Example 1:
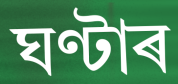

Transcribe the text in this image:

ঘণ্টাৰ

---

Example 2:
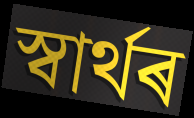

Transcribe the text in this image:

স্বাৰ্থৰ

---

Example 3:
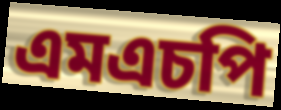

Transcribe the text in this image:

এমএচপি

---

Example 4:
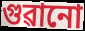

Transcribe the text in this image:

গুৱানো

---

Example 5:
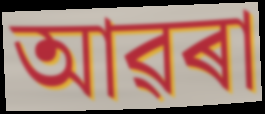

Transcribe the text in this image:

আৱৰা